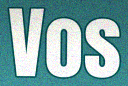
Vos